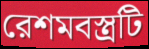
রেশমবস্ত্রটি